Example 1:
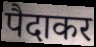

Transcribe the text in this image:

पैदाकर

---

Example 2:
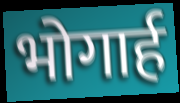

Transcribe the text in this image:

भोगार्ह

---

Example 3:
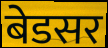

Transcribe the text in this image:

बेडसर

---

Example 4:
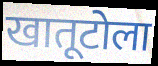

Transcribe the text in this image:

खातूटोला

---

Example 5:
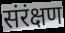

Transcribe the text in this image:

संरंक्षण